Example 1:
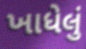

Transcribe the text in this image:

ખાધેલું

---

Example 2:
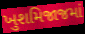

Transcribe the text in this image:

ખુશમિજાજમાં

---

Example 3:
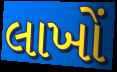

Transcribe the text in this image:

લાખોં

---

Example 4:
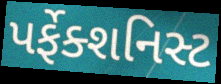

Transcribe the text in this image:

પર્ફેક્શનિસ્ટ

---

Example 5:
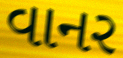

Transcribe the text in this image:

વાનર